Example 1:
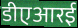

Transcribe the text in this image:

डीएआरई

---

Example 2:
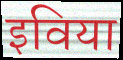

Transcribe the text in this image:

इविया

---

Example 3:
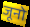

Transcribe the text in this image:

जूनो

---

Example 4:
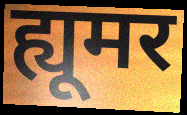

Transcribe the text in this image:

ह्यूमर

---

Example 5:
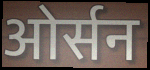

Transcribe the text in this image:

ओर्सन